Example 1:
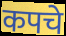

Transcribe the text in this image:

कपचे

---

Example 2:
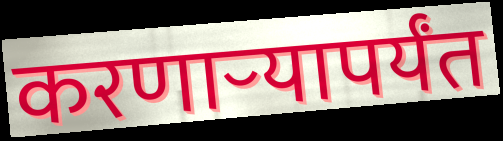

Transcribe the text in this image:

करणाऱ्यापर्यंत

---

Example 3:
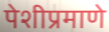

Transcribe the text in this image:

पेशीप्रमाणे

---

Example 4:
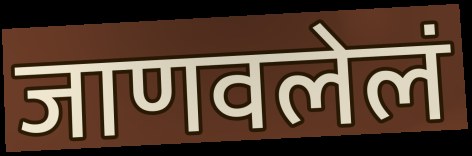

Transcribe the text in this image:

जाणवलेलं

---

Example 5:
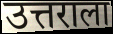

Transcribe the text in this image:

उत्तराला